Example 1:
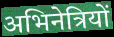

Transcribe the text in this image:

अभिनेत्रियों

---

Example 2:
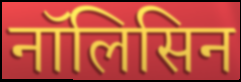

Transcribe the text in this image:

नॉलिसिन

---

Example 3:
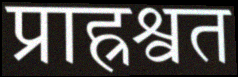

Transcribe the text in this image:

प्राह्रश्वत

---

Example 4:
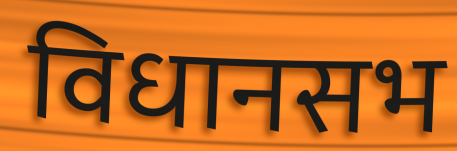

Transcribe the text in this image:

विधानसभ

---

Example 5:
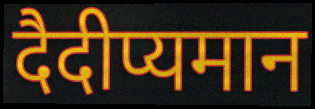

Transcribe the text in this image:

दैदीप्यमान